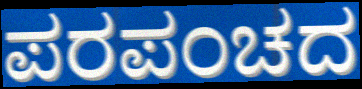
ಪರಪಂಚದ